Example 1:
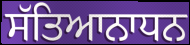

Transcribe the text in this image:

ਸੱਤਿਆਨਾਧਨ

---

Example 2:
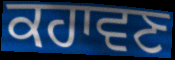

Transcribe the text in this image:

ਕਹਾਵਣ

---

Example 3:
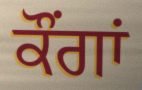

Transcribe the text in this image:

ਕੌਂਗਾਂ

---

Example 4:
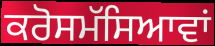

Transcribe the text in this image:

ਕਰੋਸਮੱਸਿਆਵਾਂ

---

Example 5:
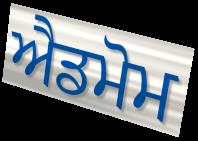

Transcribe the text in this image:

ਐਡਮੋਮ